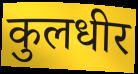
कुलधीर